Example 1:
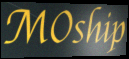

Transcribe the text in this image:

MOship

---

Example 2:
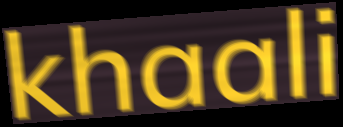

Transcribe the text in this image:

khaali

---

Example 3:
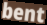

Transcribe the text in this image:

bent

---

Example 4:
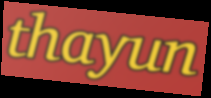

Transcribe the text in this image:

thayun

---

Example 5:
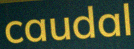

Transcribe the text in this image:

caudal